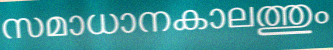
സമാധാനകാലത്തും